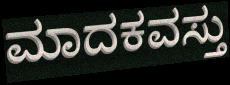
ಮಾದಕವಸ್ತು